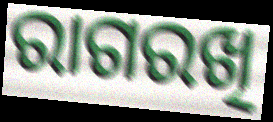
ରାଗରଖି